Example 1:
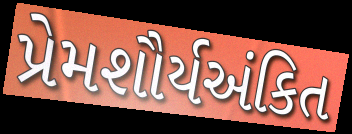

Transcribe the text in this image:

પ્રેમશૌર્યઅંકિત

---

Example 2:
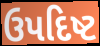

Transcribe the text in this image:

ઉપદિષ્ટ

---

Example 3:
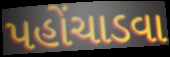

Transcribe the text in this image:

પહોંચાડવા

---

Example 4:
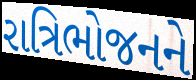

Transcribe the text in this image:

રાત્રિભોજનને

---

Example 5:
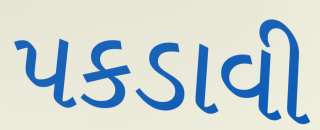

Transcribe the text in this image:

પકડાવી